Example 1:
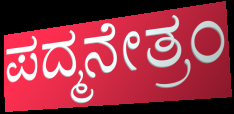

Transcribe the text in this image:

ಪದ್ಮನೇತ್ರಂ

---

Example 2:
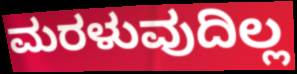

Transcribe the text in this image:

ಮರಳುವುದಿಲ್ಲ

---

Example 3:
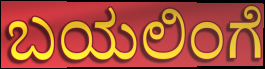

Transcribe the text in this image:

ಬಯಲಿಂಗೆ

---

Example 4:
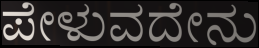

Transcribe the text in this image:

ಪೇಳುವದೇನು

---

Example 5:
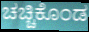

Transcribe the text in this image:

ಚಚ್ಚಿಕೊಂಡ